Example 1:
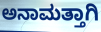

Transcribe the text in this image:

ಅನಾಮತ್ತಾಗಿ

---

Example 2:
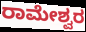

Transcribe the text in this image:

ರಾಮೇಶ್ವರ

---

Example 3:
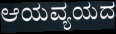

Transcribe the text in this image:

ಆಯವ್ಯಯದ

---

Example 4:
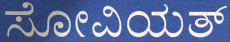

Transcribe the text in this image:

ಸೋವಿಯತ್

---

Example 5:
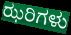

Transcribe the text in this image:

ಝರಿಗಳು